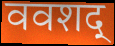
ववशद्